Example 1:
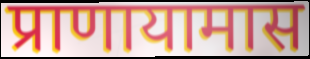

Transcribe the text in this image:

प्राणायामास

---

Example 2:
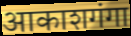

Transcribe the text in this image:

आकाशगंगा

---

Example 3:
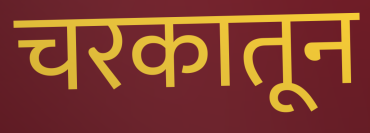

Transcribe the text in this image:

चरकातून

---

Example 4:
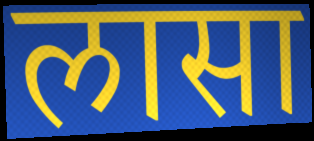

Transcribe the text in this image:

लासा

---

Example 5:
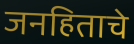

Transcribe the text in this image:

जनहिताचे